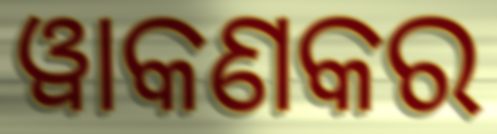
ୱାକଣକର